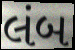
લંબ